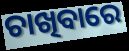
ଚାଖିବାରେ